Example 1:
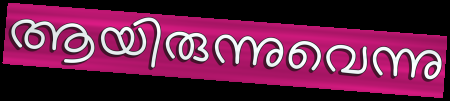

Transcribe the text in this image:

ആയിരുന്നുവെന്നു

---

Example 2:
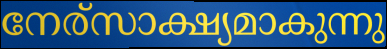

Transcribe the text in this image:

നേര്സാക്ഷ്യമാകുന്നു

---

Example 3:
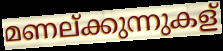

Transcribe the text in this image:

മണല്ക്കുന്നുകള്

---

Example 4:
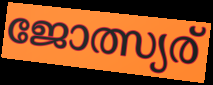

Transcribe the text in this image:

ജോത്സ്യര്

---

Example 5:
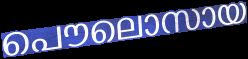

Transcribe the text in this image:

പൌലൊസായ